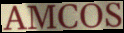
AMCOS